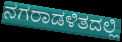
ನಗರಾಡಳಿತದಲ್ಲಿ